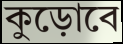
কুড়োবে